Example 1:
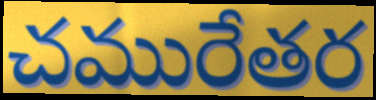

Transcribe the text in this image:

చమురేతర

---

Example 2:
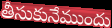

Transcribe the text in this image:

తీసుకునేముందు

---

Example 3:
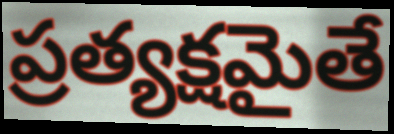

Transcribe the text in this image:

ప్రత్యక్షమైతే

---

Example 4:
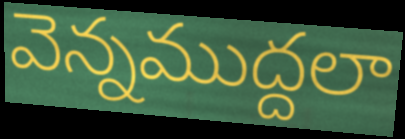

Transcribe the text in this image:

వెన్నముద్దలా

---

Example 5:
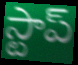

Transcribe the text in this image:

స్టాప్